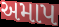
અમાપ